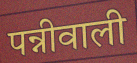
पन्नीवाली